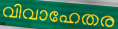
വിവാഹേതര